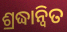
ଶ୍ରଦ୍ଧାନ୍ୱିତ